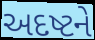
અદષ્ટને